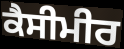
ਕੈਸੀਮੀਰ